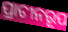
ପ୍ରାଚୀନରୂପ